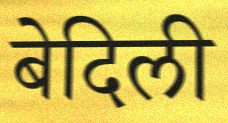
बेदिली